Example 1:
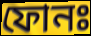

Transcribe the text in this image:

ফোনঃ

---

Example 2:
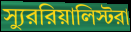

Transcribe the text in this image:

স্যুররিয়ালিস্টরা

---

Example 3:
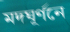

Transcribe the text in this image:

মদঘূর্ণনে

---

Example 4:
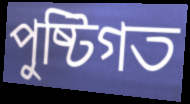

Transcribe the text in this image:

পুষ্টিগত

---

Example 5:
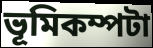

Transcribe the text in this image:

ভূমিকম্পটা